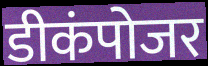
डीकंपोजर